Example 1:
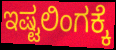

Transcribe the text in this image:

ಇಷ್ಟಲಿಂಗಕ್ಕೆ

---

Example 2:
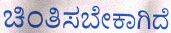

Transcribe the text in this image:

ಚಿಂತಿಸಬೇಕಾಗಿದೆ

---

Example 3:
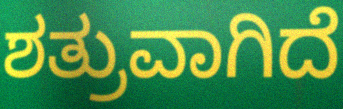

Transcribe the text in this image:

ಶತ್ರುವಾಗಿದೆ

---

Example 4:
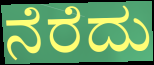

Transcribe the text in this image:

ನೆರೆದು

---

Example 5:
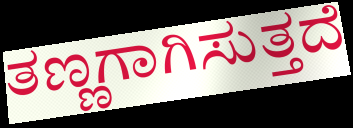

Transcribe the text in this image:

ತಣ್ಣಗಾಗಿಸುತ್ತದೆ